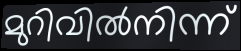
മുറിവിൽനിന്ന്